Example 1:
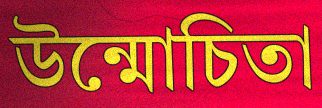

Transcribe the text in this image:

উন্মোচিতা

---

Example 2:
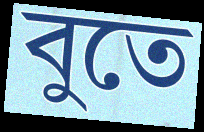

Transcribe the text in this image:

বুতে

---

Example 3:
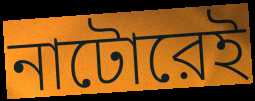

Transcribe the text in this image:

নাটোরেই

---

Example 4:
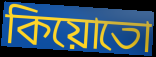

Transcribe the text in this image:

কিয়োতো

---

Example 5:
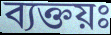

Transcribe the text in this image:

ব্যক্তয়ঃ